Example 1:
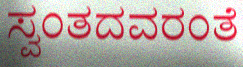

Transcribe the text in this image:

ಸ್ವಂತದವರಂತೆ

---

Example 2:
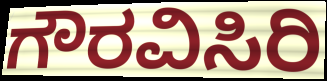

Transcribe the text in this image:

ಗೌರವಿಸಿರಿ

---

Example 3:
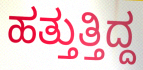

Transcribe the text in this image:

ಹತ್ತುತ್ತಿದ್ದ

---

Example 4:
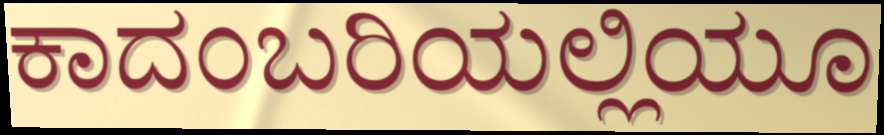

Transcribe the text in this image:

ಕಾದಂಬರಿಯಲ್ಲಿಯೂ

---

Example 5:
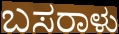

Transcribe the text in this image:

ಬಸರಾಳು